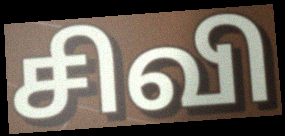
சிவி